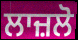
ਲਾਜ਼ਲੋ